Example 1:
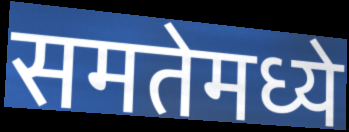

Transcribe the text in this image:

समतेमध्ये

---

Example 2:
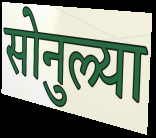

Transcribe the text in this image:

सोनुल्या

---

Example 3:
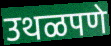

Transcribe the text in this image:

उथळपणे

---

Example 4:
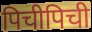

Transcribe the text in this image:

पिचीपिची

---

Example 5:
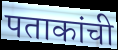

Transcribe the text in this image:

पताकांची